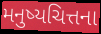
મનુષ્યચિત્તના